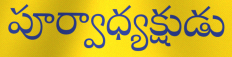
పూర్వాధ్యక్షుడు